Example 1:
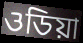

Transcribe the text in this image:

ওডিয়া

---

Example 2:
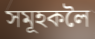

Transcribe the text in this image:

সমূহকলৈ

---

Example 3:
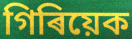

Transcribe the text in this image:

গিৰিয়েক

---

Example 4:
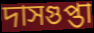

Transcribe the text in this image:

দাসগুপ্তা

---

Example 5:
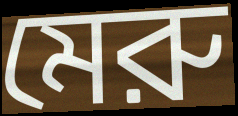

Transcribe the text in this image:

মেৰু